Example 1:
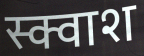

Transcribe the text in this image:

स्क्वाश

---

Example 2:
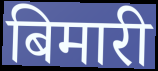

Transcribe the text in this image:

बिमारी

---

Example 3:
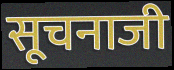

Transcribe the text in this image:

सूचनाजी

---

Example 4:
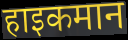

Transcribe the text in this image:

हाइकमान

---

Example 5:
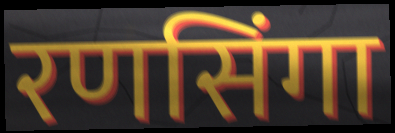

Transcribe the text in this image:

रणसिंगा